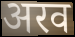
अरव